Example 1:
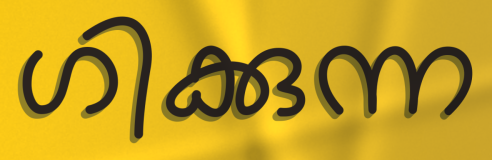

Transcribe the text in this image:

ഗിക്കുന്ന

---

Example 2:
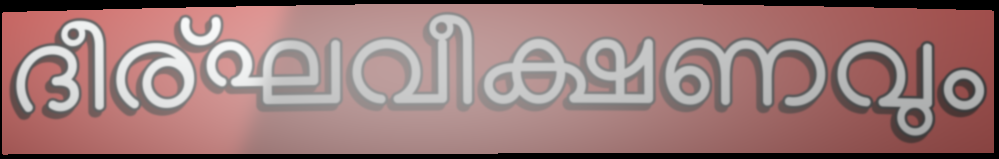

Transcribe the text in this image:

ദീര്ഘവീക്ഷണവും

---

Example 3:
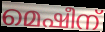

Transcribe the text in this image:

മെഷീന്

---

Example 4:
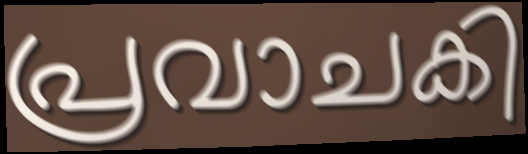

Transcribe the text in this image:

പ്രവാചകി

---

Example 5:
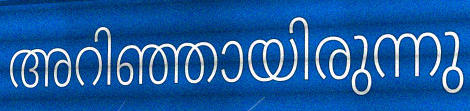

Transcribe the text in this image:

അറിഞ്ഞായിരുന്നു